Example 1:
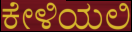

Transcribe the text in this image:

ಕೇಳಿಯಲಿ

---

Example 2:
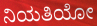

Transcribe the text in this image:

ನಿಯತಿಯೋ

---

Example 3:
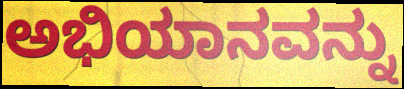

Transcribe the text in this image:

ಅಭಿಯಾನವನ್ನು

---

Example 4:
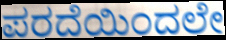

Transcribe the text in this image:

ಪರದೆಯಿಂದಲೇ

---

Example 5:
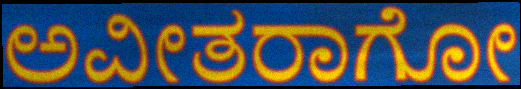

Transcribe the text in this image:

ಅವೀತರಾಗೋ